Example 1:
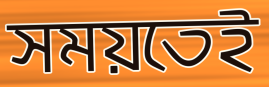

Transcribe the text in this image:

সময়তেই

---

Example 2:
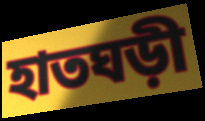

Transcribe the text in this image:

হাতঘড়ী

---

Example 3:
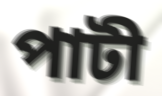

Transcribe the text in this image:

পাটী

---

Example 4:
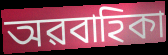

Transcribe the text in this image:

অৱবাহিকা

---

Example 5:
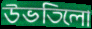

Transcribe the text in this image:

উভতিলো